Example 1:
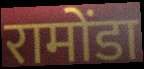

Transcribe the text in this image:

रामोंडा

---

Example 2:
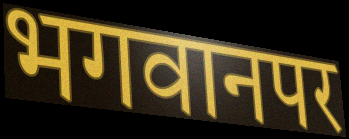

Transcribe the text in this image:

भगवानपर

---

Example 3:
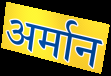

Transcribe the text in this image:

अर्मान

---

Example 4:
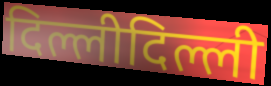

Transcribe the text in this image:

दिल्लीदिल्ली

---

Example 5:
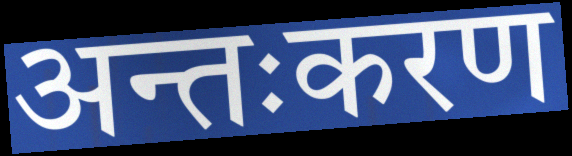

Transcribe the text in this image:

अन्तःकरण